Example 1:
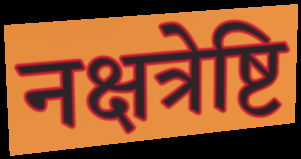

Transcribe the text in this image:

नक्षत्रेष्टि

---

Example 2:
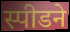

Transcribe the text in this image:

स्पीडने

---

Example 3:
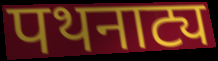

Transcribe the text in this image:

पथनाट्य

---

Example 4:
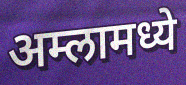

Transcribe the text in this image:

अम्लामध्ये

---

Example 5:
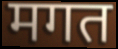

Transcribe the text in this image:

मगत